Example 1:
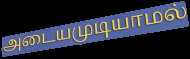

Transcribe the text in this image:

அடையமுடியாமல்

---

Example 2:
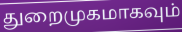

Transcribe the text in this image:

துறைமுகமாகவும்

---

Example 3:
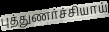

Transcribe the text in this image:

புத்துணர்ச்சியாய்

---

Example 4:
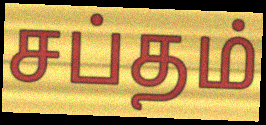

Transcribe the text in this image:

சப்தம்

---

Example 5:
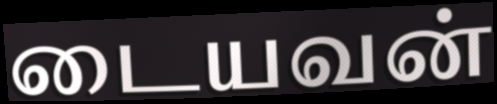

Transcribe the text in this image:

டையவன்